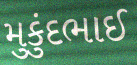
મુકુંદભાઈ